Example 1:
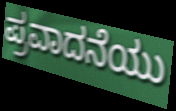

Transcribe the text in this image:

ಪ್ರವಾದನೆಯು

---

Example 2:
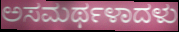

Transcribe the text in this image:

ಅಸಮರ್ಥಳಾದಳು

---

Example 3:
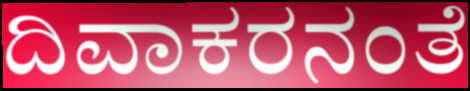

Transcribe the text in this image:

ದಿವಾಕರನಂತೆ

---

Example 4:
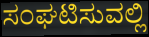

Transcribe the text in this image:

ಸಂಘಟಿಸುವಲ್ಲಿ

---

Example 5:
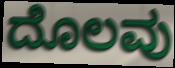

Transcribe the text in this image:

ದೊಲವು